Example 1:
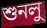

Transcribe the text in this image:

শুনলু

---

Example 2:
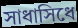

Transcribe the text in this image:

সাধাসিধে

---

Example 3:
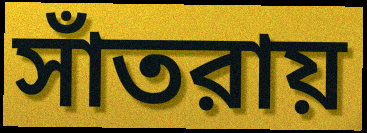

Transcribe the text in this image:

সাঁতরায়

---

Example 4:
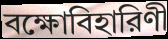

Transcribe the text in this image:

বক্ষোবিহারিণী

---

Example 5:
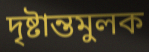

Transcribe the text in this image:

দৃষ্টান্তমুলক